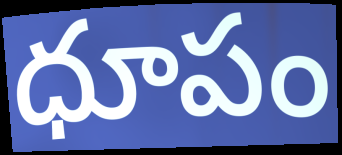
ధూపం